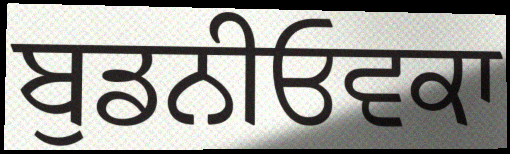
ਬੁਡਨੀਓਵਕਾ